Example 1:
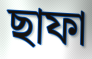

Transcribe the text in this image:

ছাফা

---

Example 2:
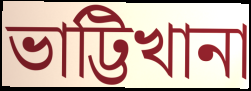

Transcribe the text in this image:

ভাট্টিখানা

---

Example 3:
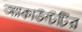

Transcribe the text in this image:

অ্যাকাউন্টটির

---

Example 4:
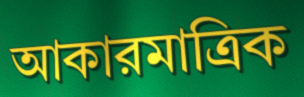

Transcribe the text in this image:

আকারমাত্রিক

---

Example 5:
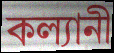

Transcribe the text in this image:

কল্যানী